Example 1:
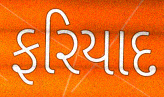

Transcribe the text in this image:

ફરિયાદ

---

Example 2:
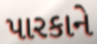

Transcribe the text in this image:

પારકાને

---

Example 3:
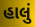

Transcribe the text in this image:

હાલું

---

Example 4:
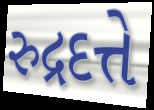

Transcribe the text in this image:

રુદ્રદત્તે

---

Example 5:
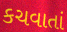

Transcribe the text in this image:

કચવાતાં